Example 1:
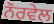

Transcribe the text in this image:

ਨੌਰਵੇਲ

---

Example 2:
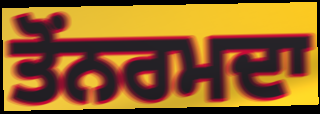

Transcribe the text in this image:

ਤੋਂਨਰਮਦਾ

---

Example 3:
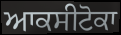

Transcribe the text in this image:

ਆਕਸੀਟੋਕਾ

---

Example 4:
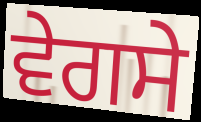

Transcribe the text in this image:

ਵੇਗਸੇ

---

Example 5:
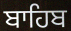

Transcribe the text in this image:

ਬਾਹਿਬ